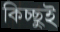
কিচ্ছুই